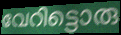
വേറിട്ടൊരു